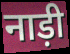
नाड़ी